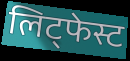
लिट्फेस्ट